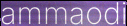
ammaodi